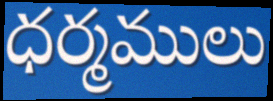
ధర్మములు